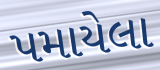
પમાયેલા